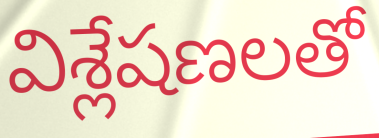
విశ్లేషణలతో